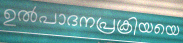
ഉൽപാദനപ്രക്രിയയെ